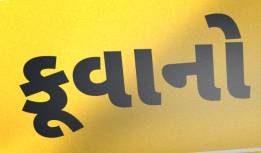
કૂવાનો